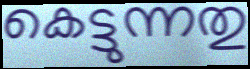
കെട്ടുന്നതു